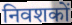
निवशकों